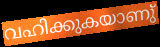
വഹിക്കുകയാണു്